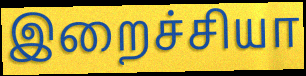
இறைச்சியா